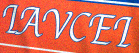
IAVCEI